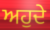
ਅਹੁਦੇ